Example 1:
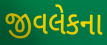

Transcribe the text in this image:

જીવલેકના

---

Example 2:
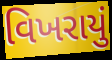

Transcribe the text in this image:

વિખરાયું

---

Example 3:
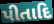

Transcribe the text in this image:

પીતાદિ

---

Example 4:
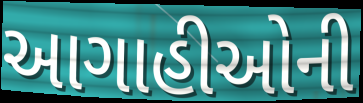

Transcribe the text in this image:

આગાહીઓની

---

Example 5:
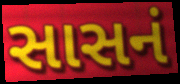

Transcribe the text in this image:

સાસનં